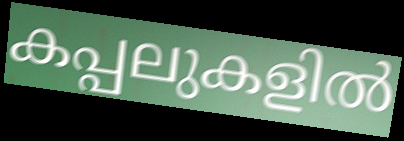
കപ്പലുകളിൽ